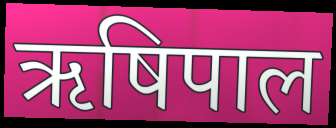
ऋषिपाल